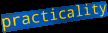
practicality